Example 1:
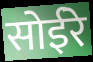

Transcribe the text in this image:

सोईरे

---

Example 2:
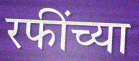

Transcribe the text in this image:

रफींच्या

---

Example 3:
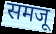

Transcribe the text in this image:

समजू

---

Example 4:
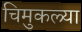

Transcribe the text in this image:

चिमुकल्या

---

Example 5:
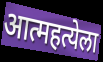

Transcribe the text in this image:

आत्महत्येला